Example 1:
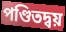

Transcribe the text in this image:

পণ্ডিতদ্বয়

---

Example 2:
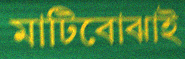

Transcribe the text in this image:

মাটিবোঝাই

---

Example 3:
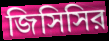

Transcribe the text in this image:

জিসিসির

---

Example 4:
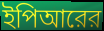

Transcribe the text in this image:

ইপিআরের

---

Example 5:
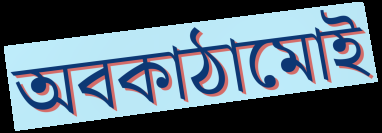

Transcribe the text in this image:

অবকাঠামোই